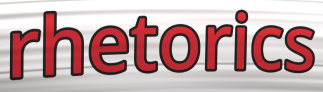
rhetorics